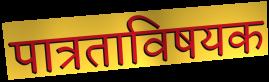
पात्रताविषयक